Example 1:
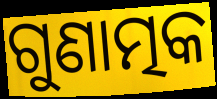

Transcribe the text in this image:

ଗୁଣାତ୍ମକ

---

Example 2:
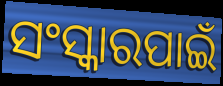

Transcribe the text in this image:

ସଂସ୍କାରପାଇଁ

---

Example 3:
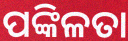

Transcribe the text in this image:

ପଙ୍କିଳତା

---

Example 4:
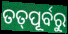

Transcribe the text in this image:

ତତ୍‌ପୂର୍ବରୁ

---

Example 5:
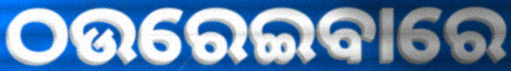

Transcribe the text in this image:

ଠଉରେଇବାରେ